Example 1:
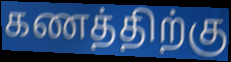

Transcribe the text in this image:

கணத்திற்கு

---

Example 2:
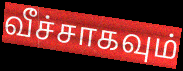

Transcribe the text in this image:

வீச்சாகவும்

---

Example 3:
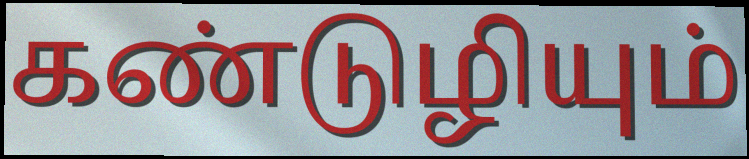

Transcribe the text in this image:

கண்டுழியும்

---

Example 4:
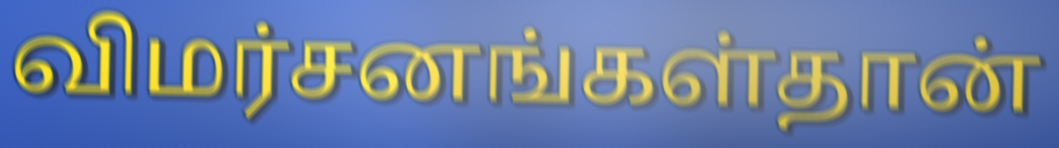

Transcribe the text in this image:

விமர்சனங்கள்தான்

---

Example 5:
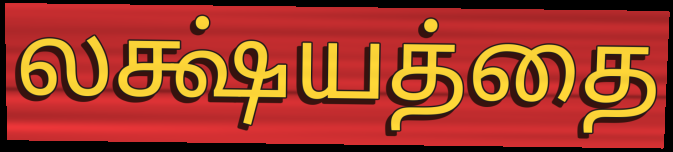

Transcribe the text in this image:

லக்ஷ்யத்தை